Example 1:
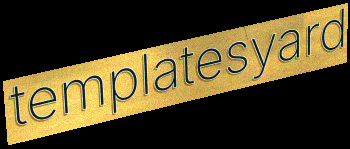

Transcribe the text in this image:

templatesyard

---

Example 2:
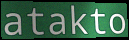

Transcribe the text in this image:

atakto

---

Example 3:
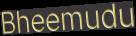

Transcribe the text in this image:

Bheemudu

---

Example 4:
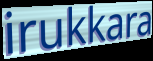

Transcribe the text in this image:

irukkara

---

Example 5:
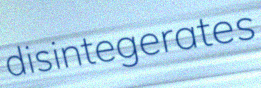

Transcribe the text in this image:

disintegerates